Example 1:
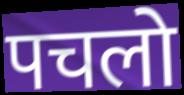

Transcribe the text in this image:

पचलो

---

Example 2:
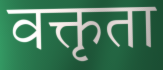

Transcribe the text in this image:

वक्तृता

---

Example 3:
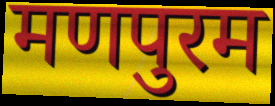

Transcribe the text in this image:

मणपुरम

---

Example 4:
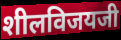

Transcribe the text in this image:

शीलविजयजी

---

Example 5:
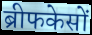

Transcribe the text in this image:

ब्रीफकेसों